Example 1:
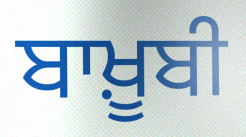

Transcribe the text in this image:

ਬਾਖ਼ੂਬੀ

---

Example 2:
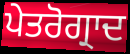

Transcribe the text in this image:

ਪੇਤਰੋਗ੍ਰਾਦ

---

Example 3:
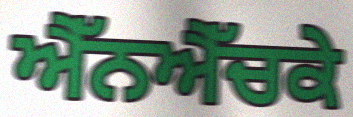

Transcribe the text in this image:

ਐੱਨਐੱਚਕੇ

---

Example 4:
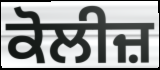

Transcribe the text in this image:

ਕੋਲੀਜ਼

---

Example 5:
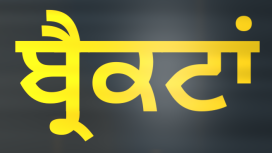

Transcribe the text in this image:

ਬ੍ਰੈਕਟਾਂ